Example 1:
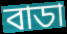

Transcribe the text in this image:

বাডা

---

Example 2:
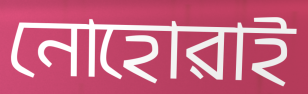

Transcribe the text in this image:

নোহোৱাই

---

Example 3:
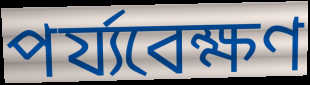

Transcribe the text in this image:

পৰ্য্যবেক্ষণ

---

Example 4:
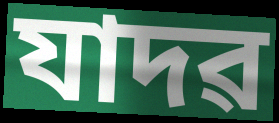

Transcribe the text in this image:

যাদৱ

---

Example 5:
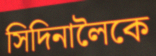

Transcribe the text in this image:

সিদিনালৈকে